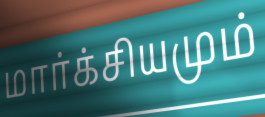
மார்க்சியமும்